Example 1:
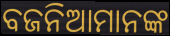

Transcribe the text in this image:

ବଜନିଆମାନଙ୍କ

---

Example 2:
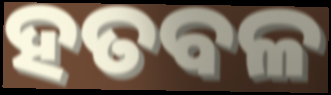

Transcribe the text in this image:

ହତବଳ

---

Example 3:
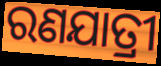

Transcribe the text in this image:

ରଣଯାତ୍ରୀ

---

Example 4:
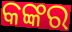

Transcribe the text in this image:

କଙ୍କର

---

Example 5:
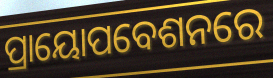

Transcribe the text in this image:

ପ୍ରାୟୋପବେଶନରେ